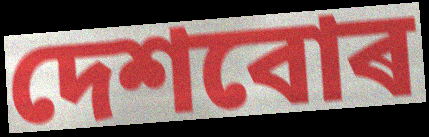
দেশবোৰ